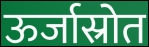
ऊर्जास्रोत